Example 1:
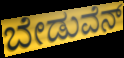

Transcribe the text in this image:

ಬೇಡುವೆನ್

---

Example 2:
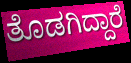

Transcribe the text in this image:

ತೊಡಗಿದ್ದಾರೆ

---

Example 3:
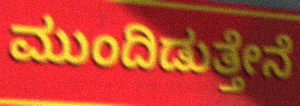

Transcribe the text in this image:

ಮುಂದಿಡುತ್ತೇನೆ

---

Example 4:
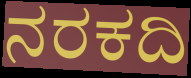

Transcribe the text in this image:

ನರಕದಿ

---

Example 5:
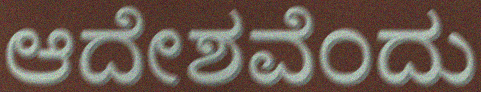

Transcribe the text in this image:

ಆದೇಶವೆಂದು